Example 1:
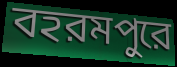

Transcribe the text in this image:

বহরমপুরে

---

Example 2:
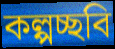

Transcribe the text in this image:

কল্পচ্ছবি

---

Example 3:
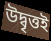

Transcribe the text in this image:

উদ্বৃত্তই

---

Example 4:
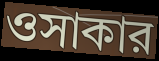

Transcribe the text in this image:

ওসাকার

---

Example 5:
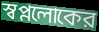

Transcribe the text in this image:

স্বপ্নলোকের